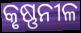
କୃଷ୍ଣନୀଳ